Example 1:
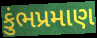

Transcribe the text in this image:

કુંભપ્રમાણ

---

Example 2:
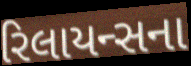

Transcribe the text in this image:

રિલાયન્સના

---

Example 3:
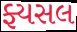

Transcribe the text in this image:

ફ્યસલ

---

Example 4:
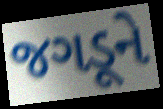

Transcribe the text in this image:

જગડૂને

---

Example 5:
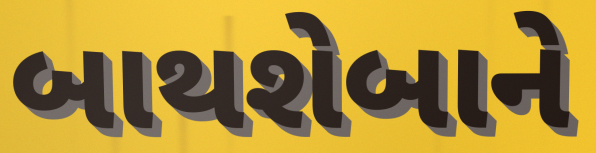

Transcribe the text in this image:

બાથશેબાને